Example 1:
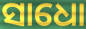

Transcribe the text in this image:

ସାଧୋ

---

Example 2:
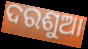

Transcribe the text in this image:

ଦରଶୁଆ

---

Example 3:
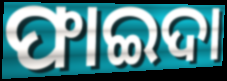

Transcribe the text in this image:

ଫାଇଦା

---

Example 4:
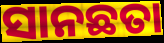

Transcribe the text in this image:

ସାନଛତା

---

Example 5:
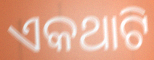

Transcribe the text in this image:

ଏକଥାଟି